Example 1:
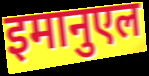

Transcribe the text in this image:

इमानुएल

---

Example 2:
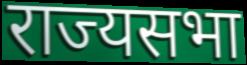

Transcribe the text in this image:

राज्यसभा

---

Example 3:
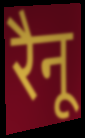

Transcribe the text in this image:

रैनू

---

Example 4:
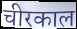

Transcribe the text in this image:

चीरकाल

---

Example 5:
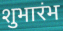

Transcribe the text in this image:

शुभारंभ